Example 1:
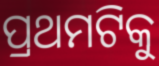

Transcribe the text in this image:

ପ୍ରଥମଟିକୁ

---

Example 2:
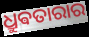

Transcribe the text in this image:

ଧ୍ରୁଵତାରାର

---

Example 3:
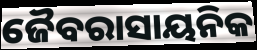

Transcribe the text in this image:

ଜୈବରାସାୟନିକ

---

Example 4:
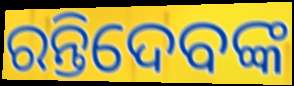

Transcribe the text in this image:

ରନ୍ତିଦେବଙ୍କ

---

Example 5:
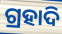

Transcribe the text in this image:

ଗ୍ରହାଦି